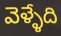
వెళ్ళేది